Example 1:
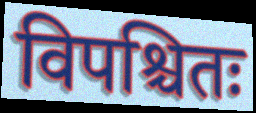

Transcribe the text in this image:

विपश्चितः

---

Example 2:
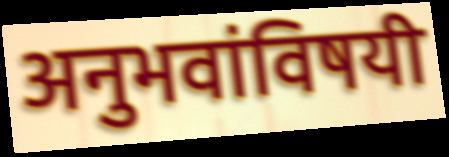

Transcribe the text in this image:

अनुभवांविषयी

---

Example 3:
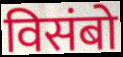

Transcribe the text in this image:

विसंबो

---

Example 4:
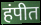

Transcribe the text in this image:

हंपीत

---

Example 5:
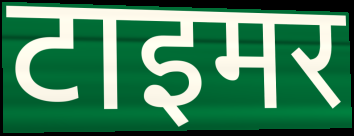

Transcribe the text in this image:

टाइमर